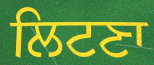
ਲਿਟਣਾ